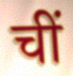
चीं